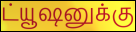
ட்யூஷனுக்கு